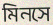
মিনসে